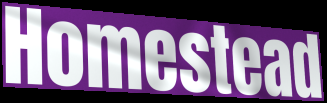
Homestead